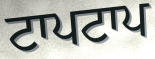
ਟਾਪਟਾਪ